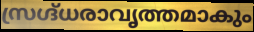
സ്രഗ്ദ്ധരാവൃത്തമാകും